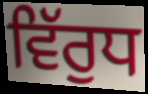
ਵਿੱਰੁਧ